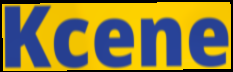
Kcene